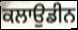
ਕਲਾਉਡੀਨ